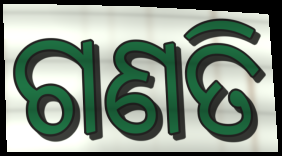
ଗଣତି